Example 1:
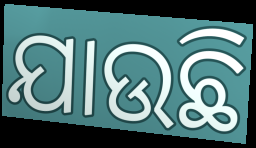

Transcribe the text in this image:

ଯାଉଛି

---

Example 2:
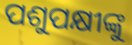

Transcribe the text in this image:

ପଶୁପକ୍ଷୀଙ୍କୁ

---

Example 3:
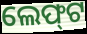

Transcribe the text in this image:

ଲେଫ୍‌ଟ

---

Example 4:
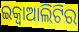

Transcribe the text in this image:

ଇକ୍ୱାଆଲିଟିର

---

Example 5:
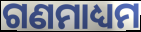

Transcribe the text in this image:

ଗଣମାଧ୍ୟମ